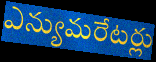
ఎన్యుమరేటర్లు